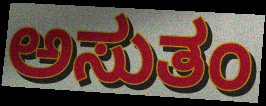
ಅಸುತಂ